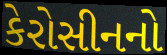
કેરોસીનનો